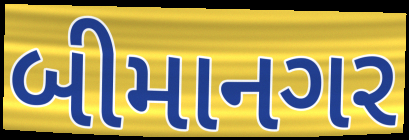
બીમાનગર